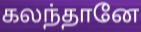
கலந்தானே